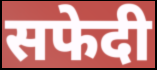
सफेदी